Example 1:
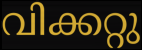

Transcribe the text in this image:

വിക്കറ്റു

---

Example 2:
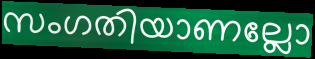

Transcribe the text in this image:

സംഗതിയാണല്ലോ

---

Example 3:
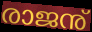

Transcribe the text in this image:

രാജനു്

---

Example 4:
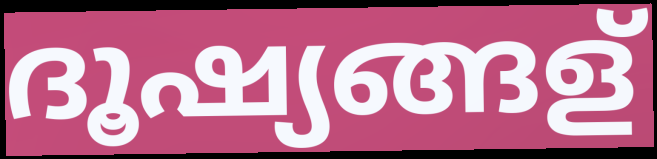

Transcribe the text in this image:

ദൂഷ്യങ്ങള്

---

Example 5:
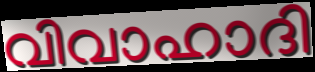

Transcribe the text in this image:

വിവാഹാദി